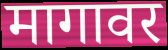
मागावर